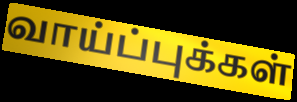
வாய்ப்புக்கள்